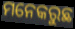
ମନେକରୁଛ